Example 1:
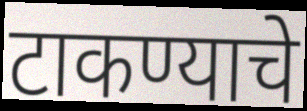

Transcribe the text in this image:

टाकण्याचे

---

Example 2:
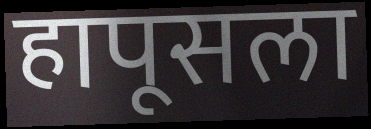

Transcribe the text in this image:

हापूसला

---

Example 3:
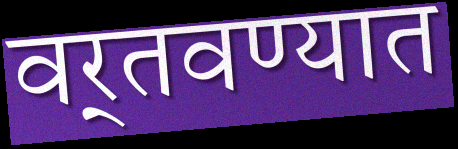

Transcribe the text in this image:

वर्तवण्यात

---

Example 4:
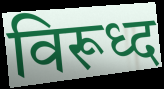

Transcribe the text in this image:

विरूध्द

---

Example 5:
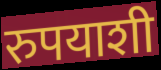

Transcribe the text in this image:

रुपयाशी